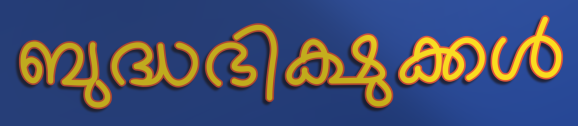
ബുദ്ധഭിക്ഷുക്കൾ